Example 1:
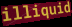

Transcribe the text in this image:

illiquid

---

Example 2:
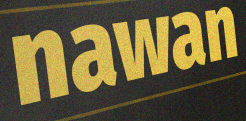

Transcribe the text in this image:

nawan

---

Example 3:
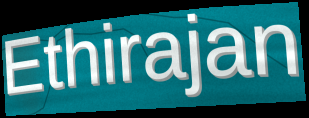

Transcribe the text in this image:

Ethirajan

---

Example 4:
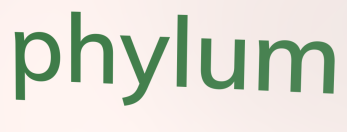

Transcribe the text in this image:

phylum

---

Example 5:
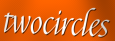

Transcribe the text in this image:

twocircles